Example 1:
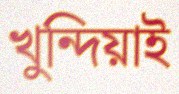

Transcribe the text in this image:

খুন্দিয়াই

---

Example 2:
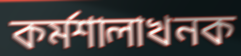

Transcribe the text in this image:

কৰ্মশালাখনক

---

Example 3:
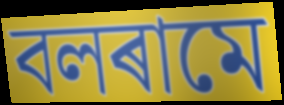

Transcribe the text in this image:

বলৰামে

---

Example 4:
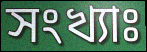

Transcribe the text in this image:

সংখ্যাঃ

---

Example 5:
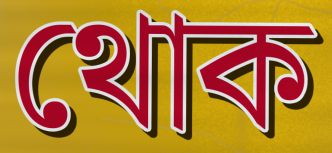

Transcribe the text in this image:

থোক